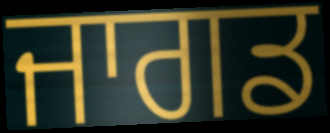
ਜਾਗਡ